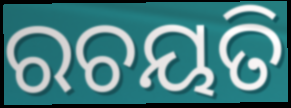
ରଚୟତି